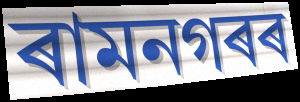
ৰামনগৰৰ